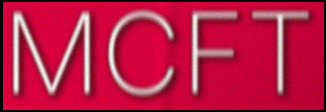
MCFT